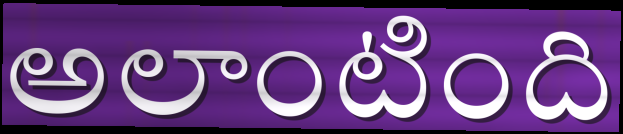
అలాంటింది